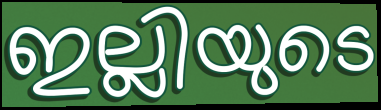
ഇല്ലിയുടെ